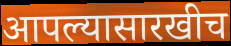
आपल्यासारखीच